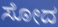
ಸೋದ